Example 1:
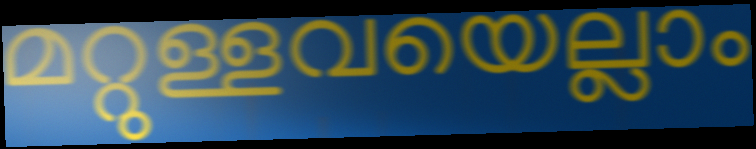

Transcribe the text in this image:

മറ്റുള്ളവയെല്ലാം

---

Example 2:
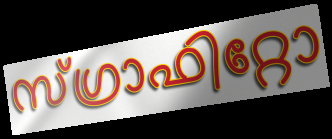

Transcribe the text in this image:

സ്ഗ്രാഫിറ്റോ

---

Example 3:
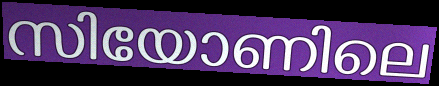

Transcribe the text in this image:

സിയോണിലെ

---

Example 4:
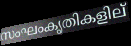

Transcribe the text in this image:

സംഘംകൃതികളില്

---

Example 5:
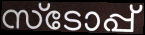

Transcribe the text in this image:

സ്ടോപ്പ്